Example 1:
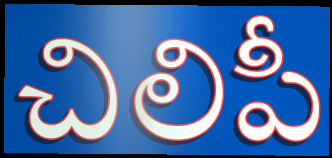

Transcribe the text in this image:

చిలిపీ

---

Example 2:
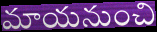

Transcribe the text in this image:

మాయనుంచి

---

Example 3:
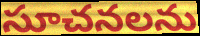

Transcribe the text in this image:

సూచనలను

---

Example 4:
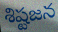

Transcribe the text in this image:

శిష్టజన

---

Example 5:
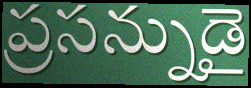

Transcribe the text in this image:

ప్రసన్నుడై